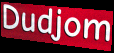
Dudjom